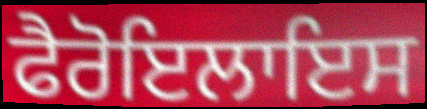
ਫੈਰੋਇਲਾਇਸ